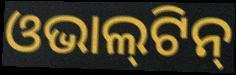
ଓଭାଲ୍‍ଟିନ୍